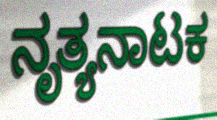
ನೃತ್ಯನಾಟಕ